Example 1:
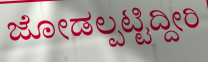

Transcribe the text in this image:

ಜೋಡಲ್ಪಟ್ಟಿದ್ದೀರಿ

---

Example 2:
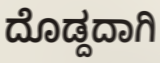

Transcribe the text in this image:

ದೊಡ್ದದಾಗಿ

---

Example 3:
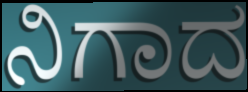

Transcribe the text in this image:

ನಿಗಾದ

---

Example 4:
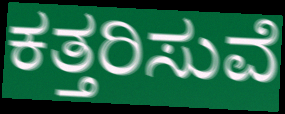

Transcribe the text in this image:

ಕತ್ತರಿಸುವೆ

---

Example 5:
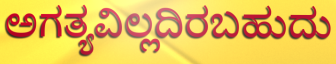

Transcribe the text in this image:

ಅಗತ್ಯವಿಲ್ಲದಿರಬಹುದು